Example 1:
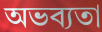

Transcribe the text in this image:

অভব্যতা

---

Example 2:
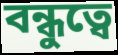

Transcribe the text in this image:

বন্ধুত্বে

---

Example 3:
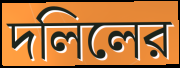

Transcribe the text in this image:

দলিলের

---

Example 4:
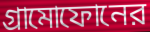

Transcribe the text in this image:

গ্রামোফোনের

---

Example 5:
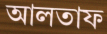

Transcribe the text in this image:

আলতাফ